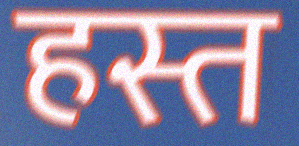
हस्त